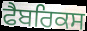
ਫੈਬਰਿਕਸ